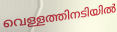
വെള്ളത്തിനടിയിൽ